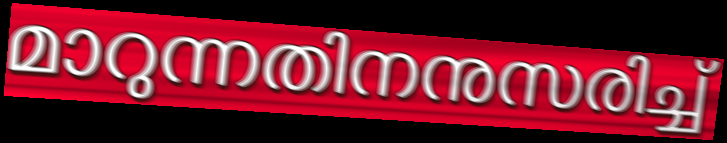
മാറുന്നതിനനുസരിച്ച്